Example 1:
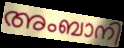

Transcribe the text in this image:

അംബാനി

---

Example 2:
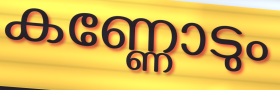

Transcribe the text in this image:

കണ്ണോടും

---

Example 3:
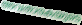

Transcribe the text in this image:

അവതാരകയുടെ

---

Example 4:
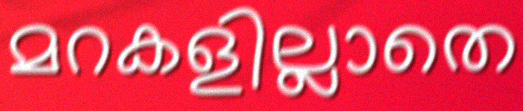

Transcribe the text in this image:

മറകളില്ലാതെ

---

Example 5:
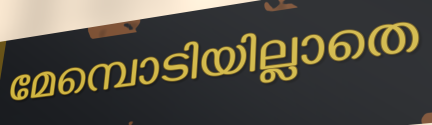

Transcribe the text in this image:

മേമ്പൊടിയില്ലാതെ